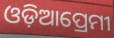
ଓଡ଼ିଆପ୍ରେମୀ